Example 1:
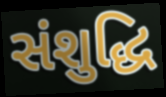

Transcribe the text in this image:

સંશુદ્ધિ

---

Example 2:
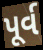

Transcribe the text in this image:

પૂર્વ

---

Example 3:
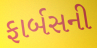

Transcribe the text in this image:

ફાર્બસની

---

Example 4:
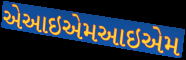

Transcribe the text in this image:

એઆઇએમઆઇએમ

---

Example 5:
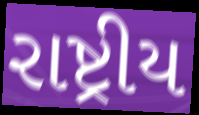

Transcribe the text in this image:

રાષ્ટ્રીય